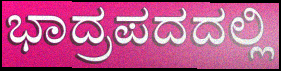
ಭಾದ್ರಪದದಲ್ಲಿ